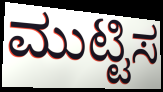
ಮುಟ್ಟಿಸ